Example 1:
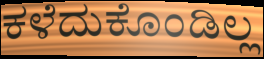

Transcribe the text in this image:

ಕಳೆದುಕೊಂಡಿಲ್ಲ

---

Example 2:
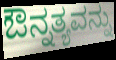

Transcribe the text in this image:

ಔನ್ನತ್ಯವನ್ನು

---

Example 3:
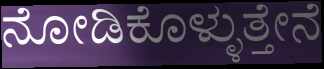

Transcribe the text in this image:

ನೋಡಿಕೊಳ್ಳುತ್ತೇನೆ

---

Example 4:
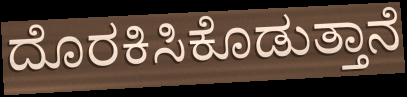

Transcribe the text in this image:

ದೊರಕಿಸಿಕೊಡುತ್ತಾನೆ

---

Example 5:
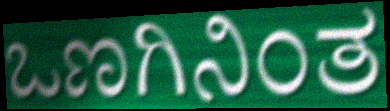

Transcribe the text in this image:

ಒಣಗಿನಿಂತ